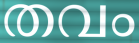
തവം